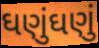
ઘણુંઘણું